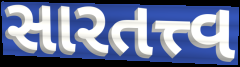
સારતત્ત્વ